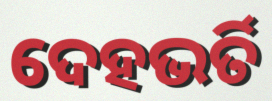
ଦେହଭର୍ତି